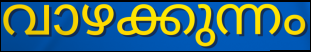
വാഴക്കുന്നം